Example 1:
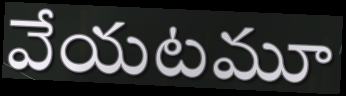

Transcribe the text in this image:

వేయటమూ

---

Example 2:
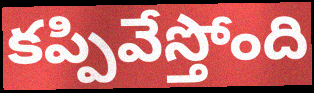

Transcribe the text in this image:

కప్పివేస్తోంది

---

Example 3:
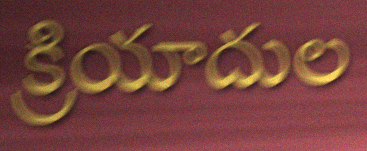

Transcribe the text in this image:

క్రియాదుల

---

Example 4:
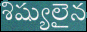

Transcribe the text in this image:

శిష్యులైన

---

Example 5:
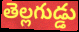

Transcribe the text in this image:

తెల్లగుడ్డు